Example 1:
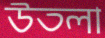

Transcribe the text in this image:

উতলা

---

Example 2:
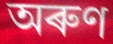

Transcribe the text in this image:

অৰুণ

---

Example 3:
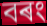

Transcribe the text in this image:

বৰং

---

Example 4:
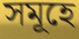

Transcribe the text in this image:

সমূহে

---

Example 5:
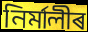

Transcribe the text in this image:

নিৰ্মালীৰ